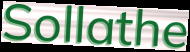
Sollathe